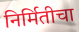
निर्मितीचा